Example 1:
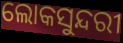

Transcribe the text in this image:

ଲୋକସୁନ୍ଦରୀ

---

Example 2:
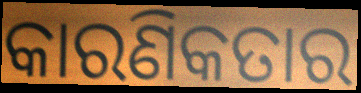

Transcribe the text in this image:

କାରଣିକତାର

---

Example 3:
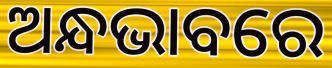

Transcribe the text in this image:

ଅନ୍ଧଭାବରେ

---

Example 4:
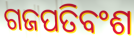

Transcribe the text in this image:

ଗଜପତିବଂଶ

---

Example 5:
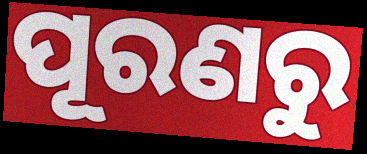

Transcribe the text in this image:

ପୂରଣରୁ